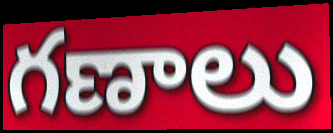
గణాలు